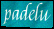
padelu